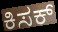
ಕಿಸಕ್